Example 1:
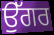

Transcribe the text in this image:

ਉੱਗਰ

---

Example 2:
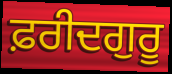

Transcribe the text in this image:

ਫ਼ਰੀਦਗੁਰੂ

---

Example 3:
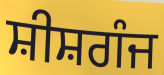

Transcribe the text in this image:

ਸ਼ੀਸ਼ਗੰਜ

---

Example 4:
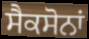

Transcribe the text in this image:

ਸੈਕਸੋਨਾਂ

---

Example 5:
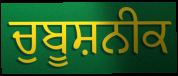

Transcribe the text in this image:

ਚੁਬੂਸ਼ਨੀਕ